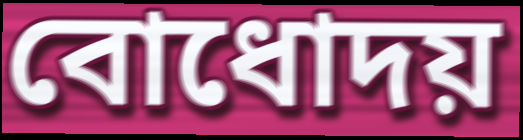
বোধোদয়